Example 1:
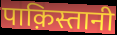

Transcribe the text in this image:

पाक़िस्तानी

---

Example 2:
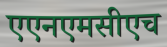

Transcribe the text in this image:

एएनएमसीएच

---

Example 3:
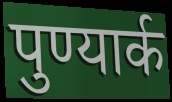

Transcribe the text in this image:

पुण्यार्क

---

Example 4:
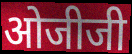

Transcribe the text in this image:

ओजीजी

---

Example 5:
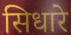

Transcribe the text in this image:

सिधारे